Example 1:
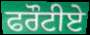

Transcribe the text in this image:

ਫਰੌਟੀਏ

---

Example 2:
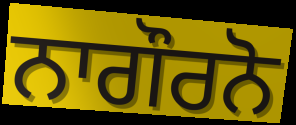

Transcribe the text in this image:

ਨਾਗੌਰਨੋ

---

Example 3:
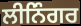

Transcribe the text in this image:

ਲੀਨਿੰਗਰ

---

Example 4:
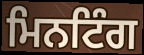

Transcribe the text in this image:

ਮਿਨਟਿੰਗ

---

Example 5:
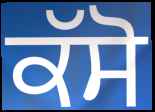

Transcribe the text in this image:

ਕੱਸੋ